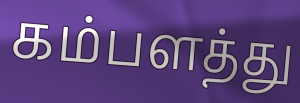
கம்பளத்து